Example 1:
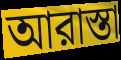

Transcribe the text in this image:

আরাস্তা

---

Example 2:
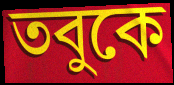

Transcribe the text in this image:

তবুকে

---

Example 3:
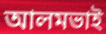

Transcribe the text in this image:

আলমভাই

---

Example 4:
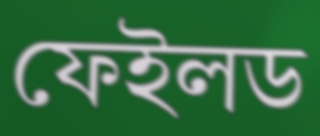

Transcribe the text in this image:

ফেইলড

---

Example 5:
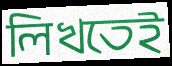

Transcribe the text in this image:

লিখতেই